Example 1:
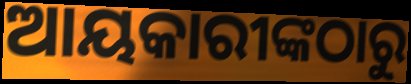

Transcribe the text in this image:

ଆୟକାରୀଙ୍କଠାରୁ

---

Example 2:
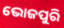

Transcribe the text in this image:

ଭୋଜପୁରି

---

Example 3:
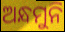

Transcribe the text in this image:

ଅନ୍ଧମୁନି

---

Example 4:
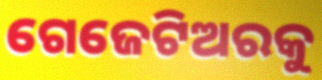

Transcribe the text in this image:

ଗେଜେଟିଅରକୁ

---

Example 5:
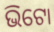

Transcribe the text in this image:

ଭିଟୋ